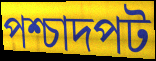
পশ্চাদপট